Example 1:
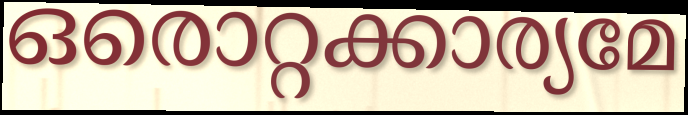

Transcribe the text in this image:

ഒരൊറ്റക്കാര്യമേ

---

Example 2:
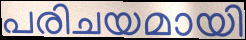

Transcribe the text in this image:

പരിചയമായി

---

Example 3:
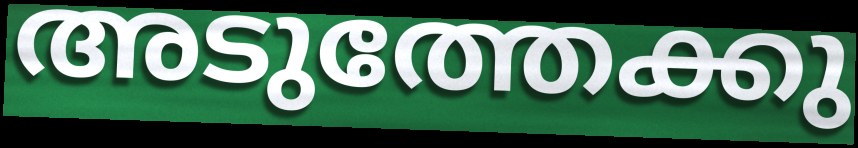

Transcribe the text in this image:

അടുത്തേക്കു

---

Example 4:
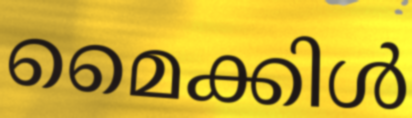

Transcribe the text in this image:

മൈക്കിൾ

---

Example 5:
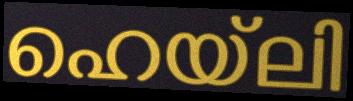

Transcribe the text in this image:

ഹെയ്‌ലി